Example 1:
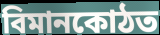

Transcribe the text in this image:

বিমানকোঠত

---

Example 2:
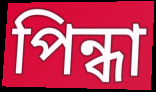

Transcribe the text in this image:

পিন্ধা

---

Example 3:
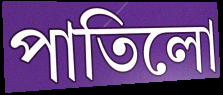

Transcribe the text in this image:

পাতিলো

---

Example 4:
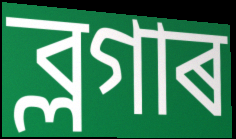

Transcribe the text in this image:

ব্লগাৰ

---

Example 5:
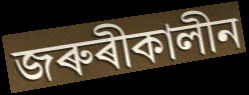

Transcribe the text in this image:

জৰুৰীকালীন